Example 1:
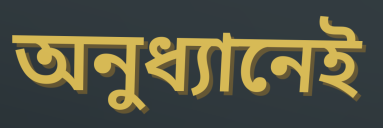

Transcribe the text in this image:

অনুধ্যানেই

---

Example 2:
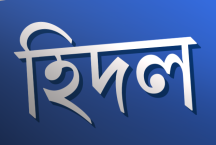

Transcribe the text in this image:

হিদল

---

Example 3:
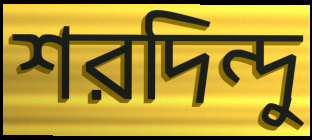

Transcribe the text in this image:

শরদিন্দু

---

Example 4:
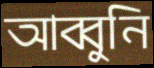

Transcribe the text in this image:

আব্বুনি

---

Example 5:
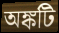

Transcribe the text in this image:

অঙ্কটি